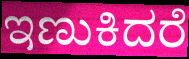
ಇಣುಕಿದರೆ